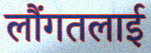
लौंगतलाई